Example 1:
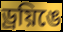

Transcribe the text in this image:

ড্রয়িঙে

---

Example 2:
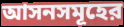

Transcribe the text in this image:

আসনসমূহের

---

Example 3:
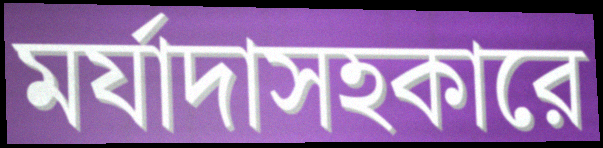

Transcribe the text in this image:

মর্যাদাসহকারে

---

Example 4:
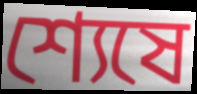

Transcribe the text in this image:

শ্যেষে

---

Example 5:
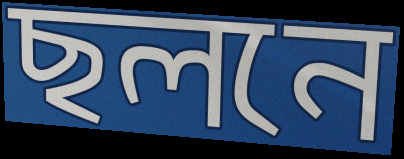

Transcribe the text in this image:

ছলনে